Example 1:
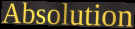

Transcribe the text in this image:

Absolution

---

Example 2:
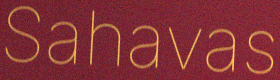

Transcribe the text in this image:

Sahavas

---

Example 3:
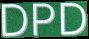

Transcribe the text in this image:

DPD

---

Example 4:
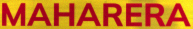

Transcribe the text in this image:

MAHARERA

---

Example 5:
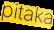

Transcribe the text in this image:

pitaka